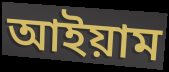
আইয়াম